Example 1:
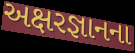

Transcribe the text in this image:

અક્ષરજ્ઞાનના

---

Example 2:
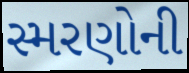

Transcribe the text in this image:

સ્મરણોની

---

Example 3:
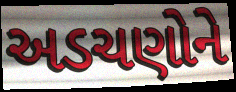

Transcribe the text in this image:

અડચણોને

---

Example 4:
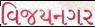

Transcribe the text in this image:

વિજયનગર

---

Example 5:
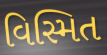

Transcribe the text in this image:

વિસ્મિત